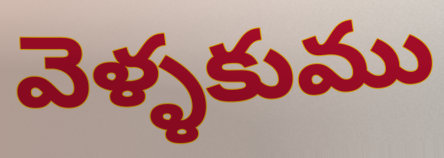
వెళ్ళకుము